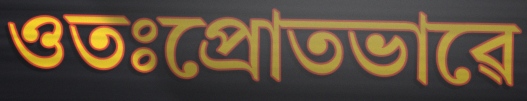
ওতঃপ্ৰোতভাৱে